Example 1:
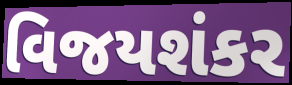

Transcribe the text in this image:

વિજયશંકર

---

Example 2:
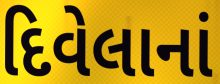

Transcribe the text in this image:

દિવેલાનાં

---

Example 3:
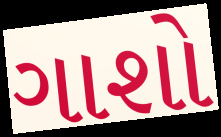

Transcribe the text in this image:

ગાશો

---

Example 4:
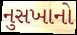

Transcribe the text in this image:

નુસખાનો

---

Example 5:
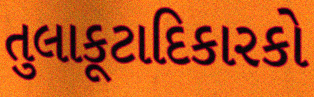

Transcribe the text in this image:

તુલાકૂટાદિકારકો